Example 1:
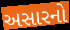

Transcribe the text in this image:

અસારનો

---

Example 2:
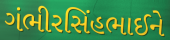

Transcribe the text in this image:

ગંભીરસિંહભાઈને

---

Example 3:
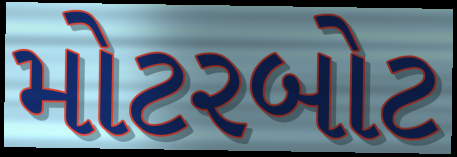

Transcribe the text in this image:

મોટરબોટ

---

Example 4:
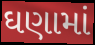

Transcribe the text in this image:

ઘણામાં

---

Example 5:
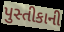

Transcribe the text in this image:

પુસ્તીકાની